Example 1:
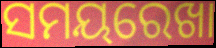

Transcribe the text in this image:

ସମୟରେଖା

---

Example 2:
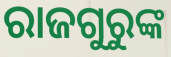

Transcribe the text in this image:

ରାଜଗୁରୁଙ୍କ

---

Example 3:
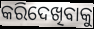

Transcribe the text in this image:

କରିଦେଖିବାକୁ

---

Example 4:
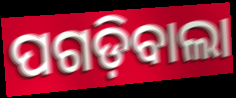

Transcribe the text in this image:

ପଗଡ଼ିବାଲା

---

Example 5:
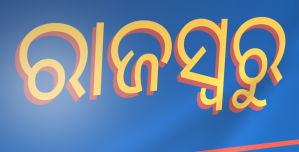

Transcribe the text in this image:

ରାଜସ୍ବରୁ